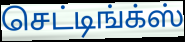
செட்டிங்க்ஸ்